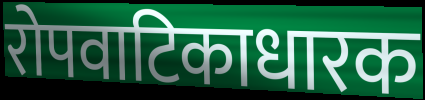
रोपवाटिकाधारक